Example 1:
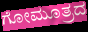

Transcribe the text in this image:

ಗೋಮೂತ್ರದ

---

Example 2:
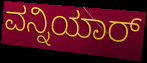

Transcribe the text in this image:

ವನ್ನಿಯಾರ್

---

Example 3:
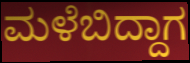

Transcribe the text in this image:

ಮಳೆಬಿದ್ದಾಗ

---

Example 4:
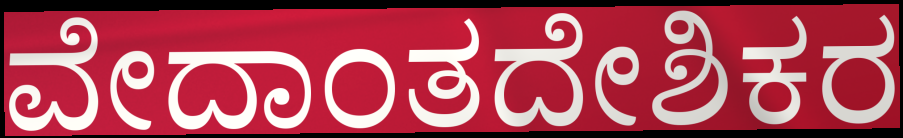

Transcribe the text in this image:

ವೇದಾಂತದೇಶಿಕರ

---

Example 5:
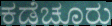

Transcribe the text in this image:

ಕಡೆಚೂರು